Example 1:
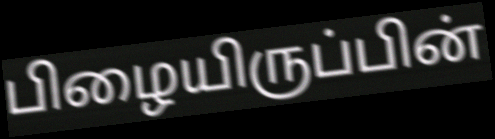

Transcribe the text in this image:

பிழையிருப்பின்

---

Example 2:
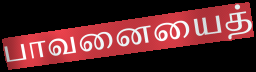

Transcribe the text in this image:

பாவனையைத்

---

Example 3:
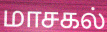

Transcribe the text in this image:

மாசகல்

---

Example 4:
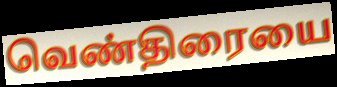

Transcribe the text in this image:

வெண்திரையை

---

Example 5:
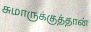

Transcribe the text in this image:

சுமாருக்குத்தான்